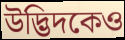
উদ্ভিদকেও